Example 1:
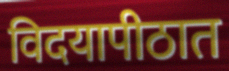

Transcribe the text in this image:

विदयापीठात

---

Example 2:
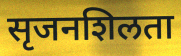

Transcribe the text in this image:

सृजनशिलता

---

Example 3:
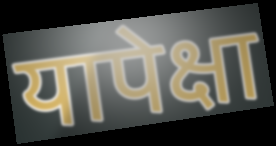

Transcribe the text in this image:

यापेक्षा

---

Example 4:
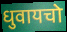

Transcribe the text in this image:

धुवायचो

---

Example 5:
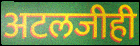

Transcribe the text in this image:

अटलजीही